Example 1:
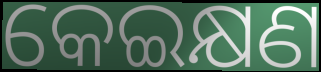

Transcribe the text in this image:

କେଇକ୍ଷଣ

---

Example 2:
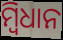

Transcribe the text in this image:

ମ୍ବିଧାନ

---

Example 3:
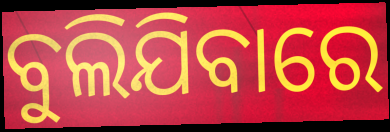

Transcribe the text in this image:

ବୁଲିଯିବାରେ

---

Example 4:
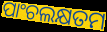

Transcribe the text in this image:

ପାଂଚଲକ୍ଷତମ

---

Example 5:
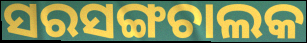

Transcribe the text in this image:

ସରସଙ୍ଗଚାଲକ